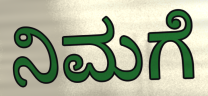
ನಿಮಗೆ